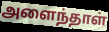
அளைந்தாள்